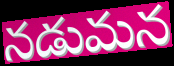
నడుమన